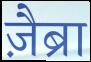
ज़ैब्रा